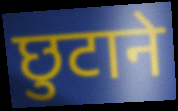
छुटाने